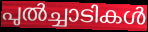
പുൽച്ചാടികൾ